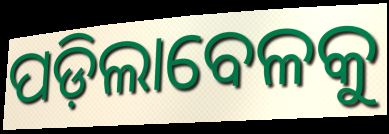
ପଡ଼ିଲାବେଳକୁ